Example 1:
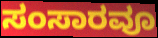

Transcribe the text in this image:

ಸಂಸಾರವೂ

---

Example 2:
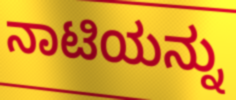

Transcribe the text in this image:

ನಾಟಿಯನ್ನು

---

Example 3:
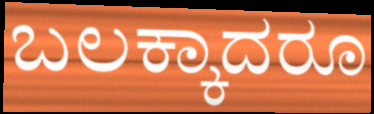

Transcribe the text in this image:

ಬಲಕ್ಕಾದರೂ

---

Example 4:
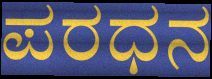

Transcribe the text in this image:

ಪರಧನ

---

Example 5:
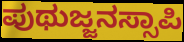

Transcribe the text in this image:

ಪುಥುಜ್ಜನಸ್ಸಾಪಿ